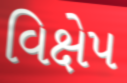
વિક્ષેપ